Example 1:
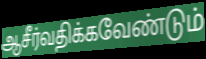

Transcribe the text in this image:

ஆசீர்வதிக்கவேண்டும்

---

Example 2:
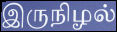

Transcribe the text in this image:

இருநிழல்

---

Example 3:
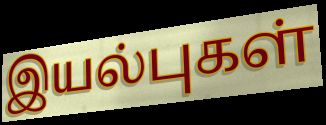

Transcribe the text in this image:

இயல்புகள்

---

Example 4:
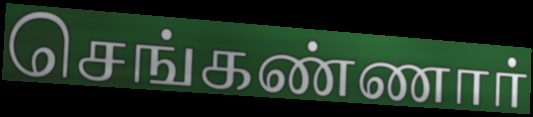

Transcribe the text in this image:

செங்கண்ணார்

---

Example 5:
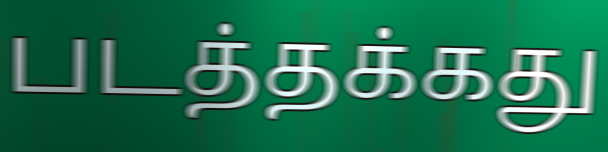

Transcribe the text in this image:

படத்தக்கது